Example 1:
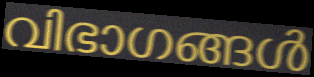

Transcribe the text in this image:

വിഭാഗങ്ങൾ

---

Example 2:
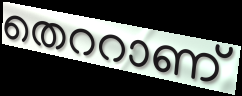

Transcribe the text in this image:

തെററാണ്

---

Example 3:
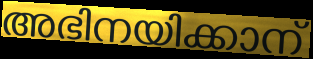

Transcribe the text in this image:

അഭിനയിക്കാന്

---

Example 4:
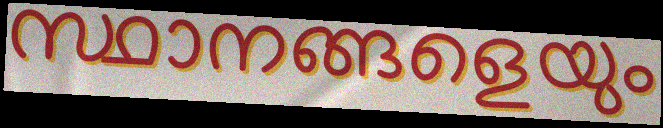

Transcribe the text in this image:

സ്ഥാനങ്ങളെയും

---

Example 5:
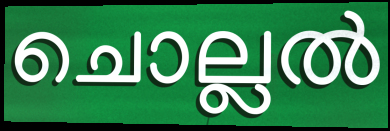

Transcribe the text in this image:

ചൊല്ലൽ